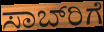
ಸಾಬ್‌ರಿಗೆ